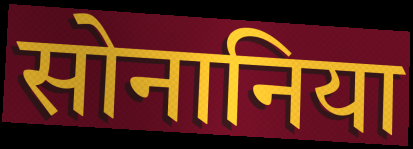
सोनानिया